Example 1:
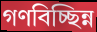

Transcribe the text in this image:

গণবিচ্ছিন্ন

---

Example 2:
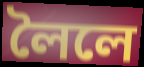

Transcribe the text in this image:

লৈলে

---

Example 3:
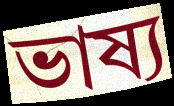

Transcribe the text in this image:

ভাষ্য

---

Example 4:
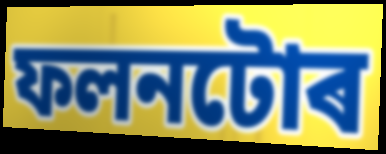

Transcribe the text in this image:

ফলনটোৰ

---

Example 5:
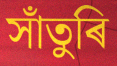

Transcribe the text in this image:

সাঁতুৰি